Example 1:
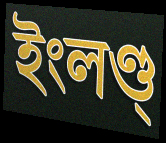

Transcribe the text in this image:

ইংলণ্ড্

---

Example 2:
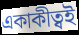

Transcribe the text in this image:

একাকীত্বই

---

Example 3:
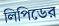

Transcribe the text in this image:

লিপিডের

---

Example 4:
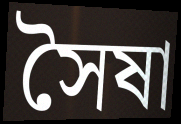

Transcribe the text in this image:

সৈষা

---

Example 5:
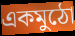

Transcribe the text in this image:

একমুঠো